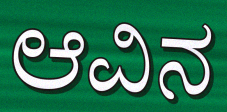
ಆವಿನ